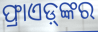
ଫ୍ରାଏଡ଼୍‍ଙ୍କର